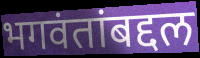
भगवंतांबद्दल